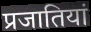
प्रजातियां